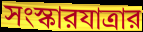
সংস্কারযাত্রার